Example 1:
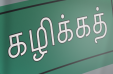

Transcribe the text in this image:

கழிக்கத்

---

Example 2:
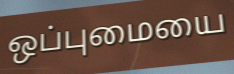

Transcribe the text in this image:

ஒப்புமையை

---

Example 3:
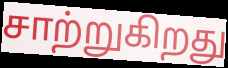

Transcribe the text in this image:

சாற்றுகிறது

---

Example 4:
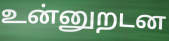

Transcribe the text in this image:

உன்னுறடன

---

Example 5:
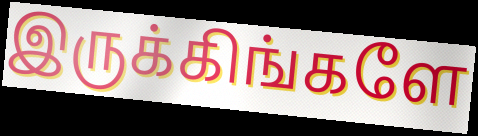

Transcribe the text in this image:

இருக்கிங்களே